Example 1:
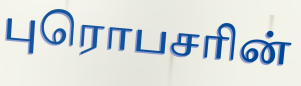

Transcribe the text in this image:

புரொபசரின்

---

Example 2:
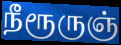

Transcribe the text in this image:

நீரூருஞ்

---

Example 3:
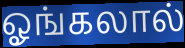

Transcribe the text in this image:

ஓங்கலால்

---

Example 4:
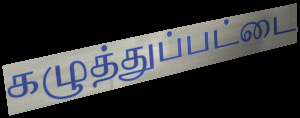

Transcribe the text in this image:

கழுத்துப்பட்டை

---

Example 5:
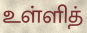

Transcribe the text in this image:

உள்ளித்